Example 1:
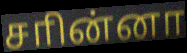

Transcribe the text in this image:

சரின்னா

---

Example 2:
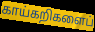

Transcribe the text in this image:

காய்கறிகளைப்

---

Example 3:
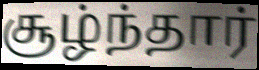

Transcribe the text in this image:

சூழ்ந்தார்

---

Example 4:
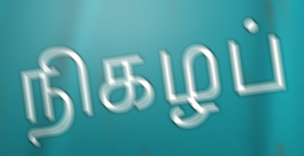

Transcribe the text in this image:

நிகழப்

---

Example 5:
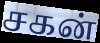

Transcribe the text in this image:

சகன்